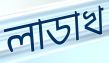
লাডাখ